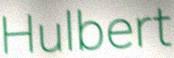
Hulbert